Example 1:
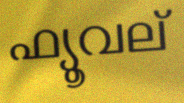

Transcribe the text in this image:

ഫ്യൂവല്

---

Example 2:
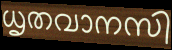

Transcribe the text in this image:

ധൃതവാനസി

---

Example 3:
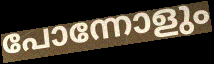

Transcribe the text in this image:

പോന്നോളും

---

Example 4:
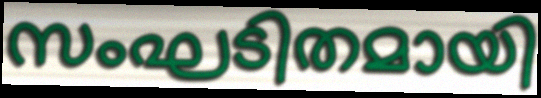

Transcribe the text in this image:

സംഘടിതമായി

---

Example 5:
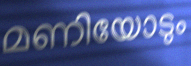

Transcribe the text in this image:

മണിയോടും